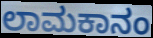
ಲಾಮಕಾನಂ